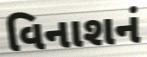
વિનાશનં